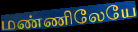
மண்ணிலேயே